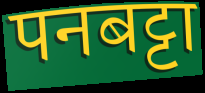
पनबट्टा